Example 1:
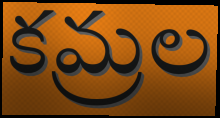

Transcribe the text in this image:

కమ్రల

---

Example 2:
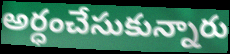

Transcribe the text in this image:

అర్ధంచేసుకున్నారు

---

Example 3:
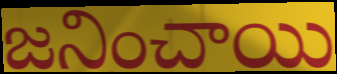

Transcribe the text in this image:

జనించాయి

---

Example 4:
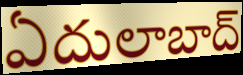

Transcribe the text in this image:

ఏదులాబాద్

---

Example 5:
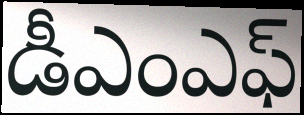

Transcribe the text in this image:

డీఎంఎఫ్